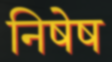
निषेष